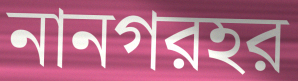
নানগরহর